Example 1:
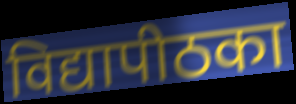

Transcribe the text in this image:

विद्यापीठका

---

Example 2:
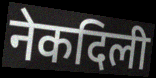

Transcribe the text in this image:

नेकदिली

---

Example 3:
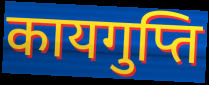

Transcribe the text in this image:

कायगुप्ति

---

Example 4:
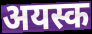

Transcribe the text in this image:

अयस्क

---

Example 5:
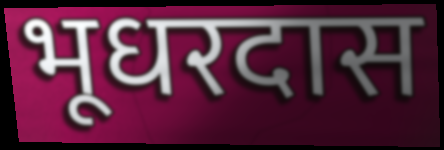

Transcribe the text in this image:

भूधरदास